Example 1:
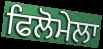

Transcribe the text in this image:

ਫਿਲੋਮੇਲਾ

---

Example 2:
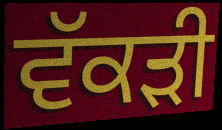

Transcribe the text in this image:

ਵੱਕੜੀ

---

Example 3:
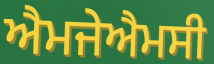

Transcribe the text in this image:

ਐਮਜੇਐਮਸੀ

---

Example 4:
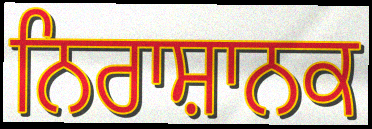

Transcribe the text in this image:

ਨਿਰਾਸ਼ਾਨਕ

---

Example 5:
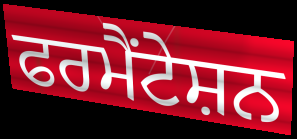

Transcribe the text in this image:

ਫਰਮੈਂਟੇਸ਼ਨ